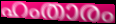
ഹംതാരം